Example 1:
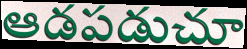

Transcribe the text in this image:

ఆడపడుచూ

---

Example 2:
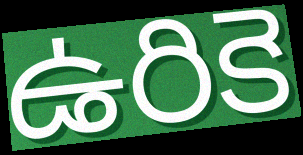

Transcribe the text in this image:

ఉరికె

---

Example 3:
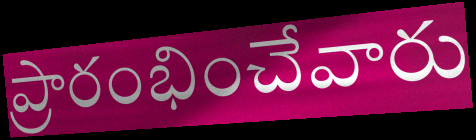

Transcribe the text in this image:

ప్రారంభించేవారు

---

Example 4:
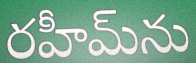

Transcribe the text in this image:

రహీమ్‌ను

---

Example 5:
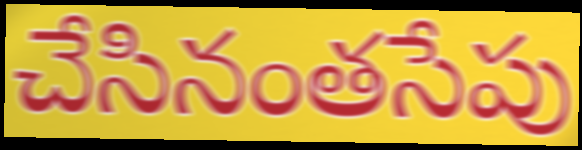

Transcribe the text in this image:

చేసినంతసేపు